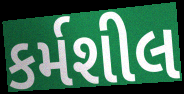
કર્મશીલ